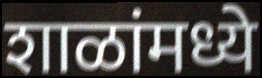
शाळांमध्ये